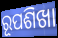
ରୂପଶିଖା